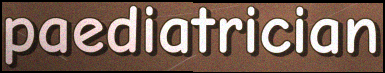
paediatrician